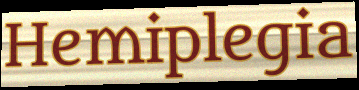
Hemiplegia